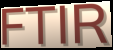
FTIR